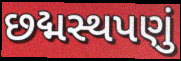
છદ્મસ્થપણું